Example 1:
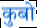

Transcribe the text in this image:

कुबो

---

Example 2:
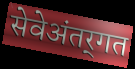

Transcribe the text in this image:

सेवेअंतर्गत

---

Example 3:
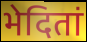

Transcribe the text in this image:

भेदितां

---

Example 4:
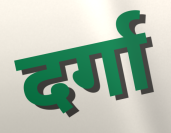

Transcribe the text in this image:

दर्गा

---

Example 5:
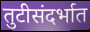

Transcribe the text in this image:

तुटीसंदर्भात